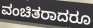
ವಂಚಿತರಾದರೂ